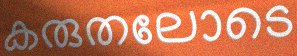
കരുതലോടെ